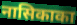
नासिकाका